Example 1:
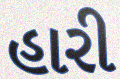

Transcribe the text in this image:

હારી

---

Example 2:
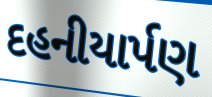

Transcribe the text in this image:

દહનીયાર્પણ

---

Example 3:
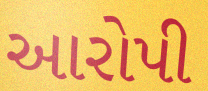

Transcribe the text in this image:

આરોપી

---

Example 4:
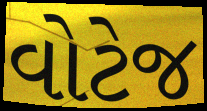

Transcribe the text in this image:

વોટેજ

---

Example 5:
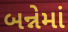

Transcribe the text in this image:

બન્નેમાં